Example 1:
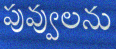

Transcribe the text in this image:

పువ్వులను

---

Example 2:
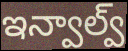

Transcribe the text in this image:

ఇన్వాల్వ్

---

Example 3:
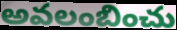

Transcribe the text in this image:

అవలంబించు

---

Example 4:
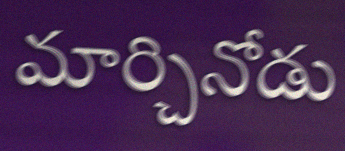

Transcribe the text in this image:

మార్చినోడు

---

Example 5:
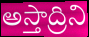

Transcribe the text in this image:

అస్తాద్రిని